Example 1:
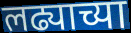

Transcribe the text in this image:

लढ्याच्या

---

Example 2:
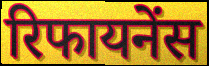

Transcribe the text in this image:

रिफायनेंस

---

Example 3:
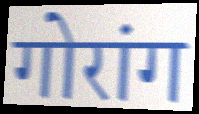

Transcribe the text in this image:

गोरांग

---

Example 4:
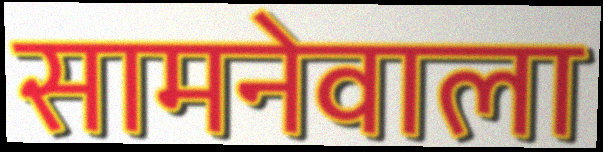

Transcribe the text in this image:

सामनेवाला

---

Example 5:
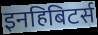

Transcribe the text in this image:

इनहिबिटर्स